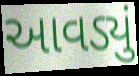
આવડ્યું